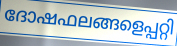
ദോഷഫലങ്ങളെപ്പറ്റി